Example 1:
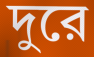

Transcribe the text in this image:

দুরে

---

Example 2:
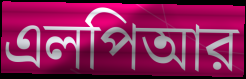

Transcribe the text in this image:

এলপিআর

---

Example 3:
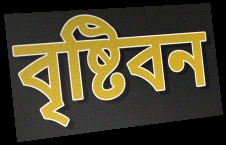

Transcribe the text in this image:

বৃষ্টিবন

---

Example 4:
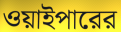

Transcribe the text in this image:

ওয়াইপারের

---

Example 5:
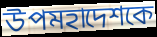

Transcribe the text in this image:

উপমহাদেশকে